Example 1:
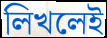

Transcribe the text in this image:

লিখলেই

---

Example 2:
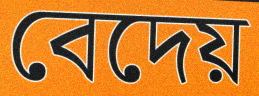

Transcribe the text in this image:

বেদেয়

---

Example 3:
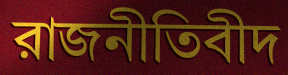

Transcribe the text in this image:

রাজনীতিবীদ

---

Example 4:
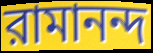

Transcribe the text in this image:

রামানন্দ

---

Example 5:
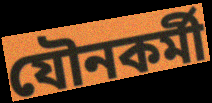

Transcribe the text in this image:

যৌনকর্মী